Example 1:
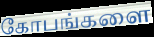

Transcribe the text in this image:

கோபங்களை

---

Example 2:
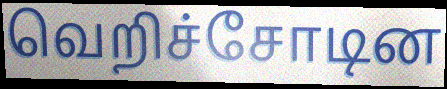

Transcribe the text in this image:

வெறிச்சோடின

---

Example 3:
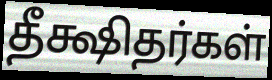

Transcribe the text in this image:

தீக்ஷிதர்கள்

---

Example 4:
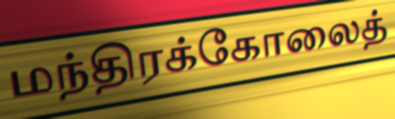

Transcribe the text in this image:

மந்திரக்கோலைத்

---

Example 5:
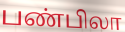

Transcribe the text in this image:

பண்பிலா